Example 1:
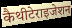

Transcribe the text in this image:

कैथीटेराइजेशन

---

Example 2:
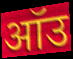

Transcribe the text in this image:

ऑउ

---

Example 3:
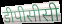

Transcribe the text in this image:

डीपीसीसी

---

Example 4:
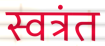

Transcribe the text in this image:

स्वत्रंत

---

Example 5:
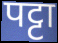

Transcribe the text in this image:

पट्टा